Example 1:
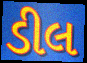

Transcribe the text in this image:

ડીલ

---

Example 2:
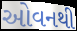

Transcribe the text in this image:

ઓવનથી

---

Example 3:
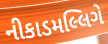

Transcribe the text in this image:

નીકાડમલ્લિગે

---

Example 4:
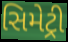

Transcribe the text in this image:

સિમેટ્રી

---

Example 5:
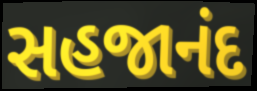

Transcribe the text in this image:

સહજાનંદ